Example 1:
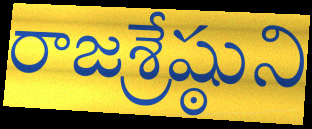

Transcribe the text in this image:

రాజశ్రేష్ఠుని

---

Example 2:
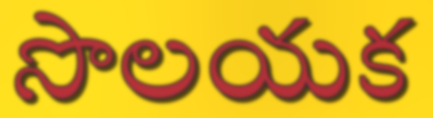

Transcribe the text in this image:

సొలయక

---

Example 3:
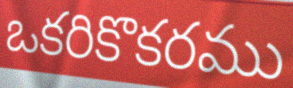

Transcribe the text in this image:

ఒకరికొకరము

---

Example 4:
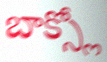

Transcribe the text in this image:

బాక్స్లో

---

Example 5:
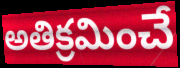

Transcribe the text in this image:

అతిక్రమించే